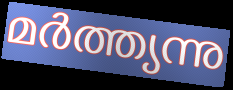
മർത്ത്യന്നു